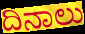
ದಿನಾಲು